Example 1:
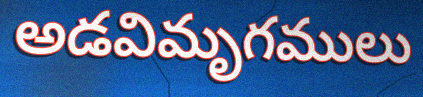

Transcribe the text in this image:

అడవిమృగములు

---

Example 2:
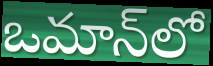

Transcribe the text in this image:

ఒమాన్‌లో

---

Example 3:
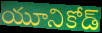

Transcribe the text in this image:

యూనికోడ్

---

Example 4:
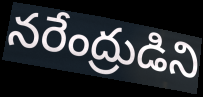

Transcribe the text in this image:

నరేంద్రుడిని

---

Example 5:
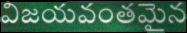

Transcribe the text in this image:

విజయవంతమైన